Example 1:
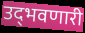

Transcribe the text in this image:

उद्भवणारी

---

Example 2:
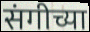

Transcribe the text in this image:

संगीच्या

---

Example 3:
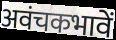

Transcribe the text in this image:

अवंचकभावें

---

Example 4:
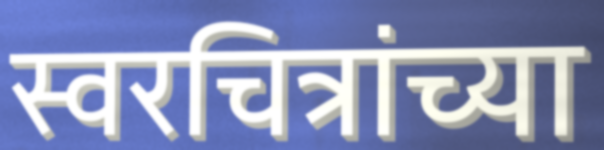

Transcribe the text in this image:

स्वरचित्रांच्या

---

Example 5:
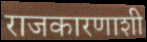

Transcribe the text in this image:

राजकारणाशी